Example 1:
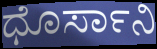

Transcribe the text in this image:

ಧೊರ್ಸಾನಿ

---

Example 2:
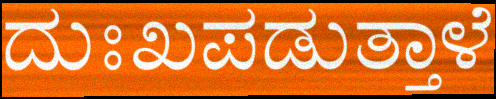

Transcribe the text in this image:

ದುಃಖಪಡುತ್ತಾಳೆ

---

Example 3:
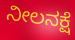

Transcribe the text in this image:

ನೀಲನಕ್ಷೆ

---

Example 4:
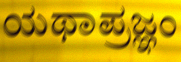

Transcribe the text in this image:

ಯಥಾಪ್ರಜ್ಞಂ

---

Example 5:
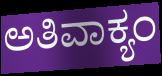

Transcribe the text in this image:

ಅತಿವಾಕ್ಯಂ